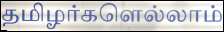
தமிழர்களெல்லாம்